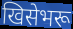
खिसेभरू